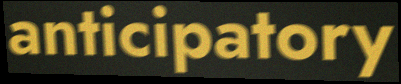
anticipatory